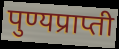
पुण्यप्राप्ती